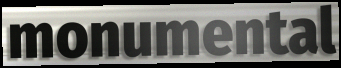
monumental